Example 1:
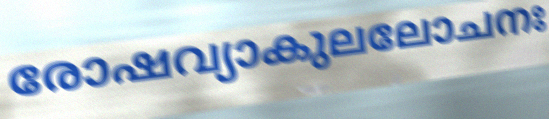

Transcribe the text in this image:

രോഷവ്യാകുലലോചനഃ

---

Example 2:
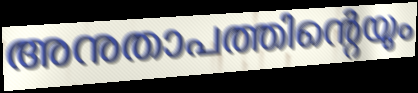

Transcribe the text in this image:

അനുതാപത്തിന്റെയും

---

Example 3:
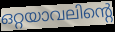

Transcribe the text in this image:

ഒറ്റയാവലിന്റെ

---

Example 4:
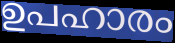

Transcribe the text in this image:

ഉപഹാരം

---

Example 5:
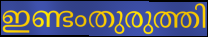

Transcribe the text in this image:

ഇണ്ടംതുരുത്തി